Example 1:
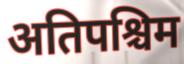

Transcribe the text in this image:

अतिपश्चिम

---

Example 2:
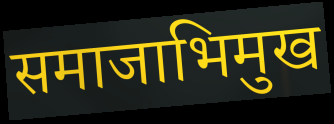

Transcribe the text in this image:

समाजाभिमुख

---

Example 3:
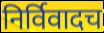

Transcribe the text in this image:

निर्विवादच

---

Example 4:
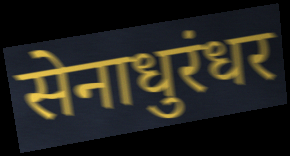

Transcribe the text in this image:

सेनाधुरंधर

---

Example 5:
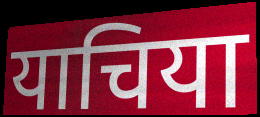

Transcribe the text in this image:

याचिया